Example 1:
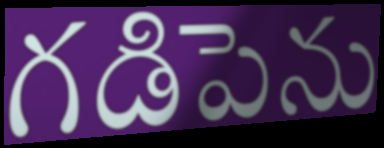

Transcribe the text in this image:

గడిపెను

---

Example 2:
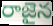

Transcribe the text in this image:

రాజైన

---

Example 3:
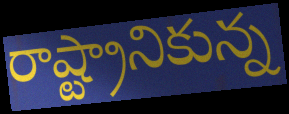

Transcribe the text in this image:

రాష్ట్రానికున్న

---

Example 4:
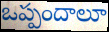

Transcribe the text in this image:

ఒప్పందాలూ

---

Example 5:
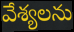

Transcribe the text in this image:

వేశ్యలను